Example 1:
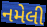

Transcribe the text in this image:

નમેલી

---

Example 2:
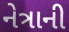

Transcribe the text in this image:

નેત્રાની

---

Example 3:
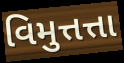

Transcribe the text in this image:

વિમુત્તત્તા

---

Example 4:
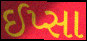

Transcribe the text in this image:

ઈપ્સા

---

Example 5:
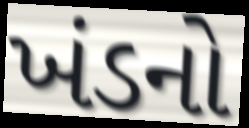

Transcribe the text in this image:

ખંડનો